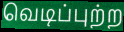
வெடிப்புற்ற